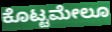
ಕೊಟ್ಟಮೇಲೂ